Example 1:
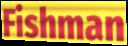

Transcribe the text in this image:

Fishman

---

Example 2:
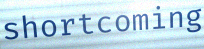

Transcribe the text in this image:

shortcoming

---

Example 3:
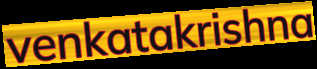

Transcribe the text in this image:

venkatakrishna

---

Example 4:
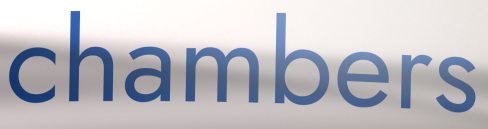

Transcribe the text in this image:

chambers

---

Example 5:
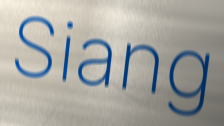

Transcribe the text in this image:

Siang